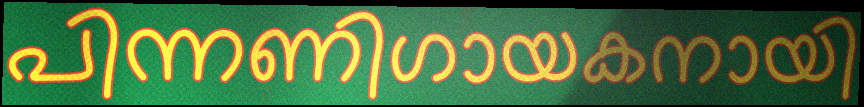
പിന്നണിഗായകനായി